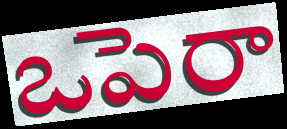
ఒపెరా